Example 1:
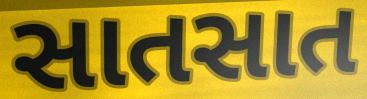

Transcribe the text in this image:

સાતસાત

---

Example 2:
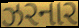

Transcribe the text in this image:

ઝરનાર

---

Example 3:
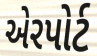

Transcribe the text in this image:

એરપોર્ટ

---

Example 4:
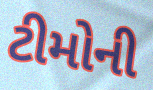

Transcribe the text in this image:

ટીમોની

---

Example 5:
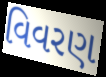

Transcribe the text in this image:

વિવરણ